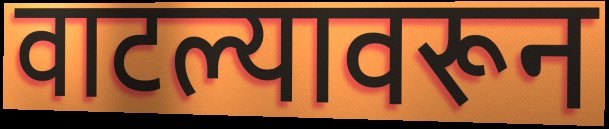
वाटल्यावरून